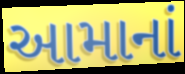
આમાનાં